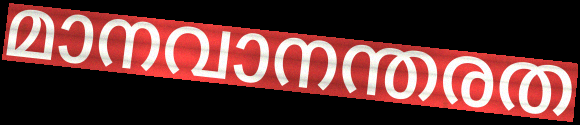
മാനവാനന്തരത